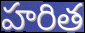
హరిత